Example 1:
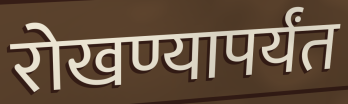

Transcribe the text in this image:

रोखण्यापर्यंत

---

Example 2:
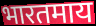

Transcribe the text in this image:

भारतमाय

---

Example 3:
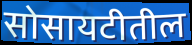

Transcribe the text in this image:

सोसायटीतील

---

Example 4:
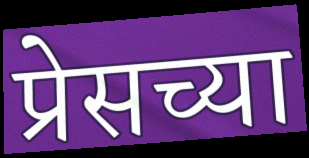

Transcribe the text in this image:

प्रेसच्या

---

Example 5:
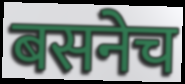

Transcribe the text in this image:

बसनेच